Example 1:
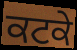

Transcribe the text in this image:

ਕਟਕੇ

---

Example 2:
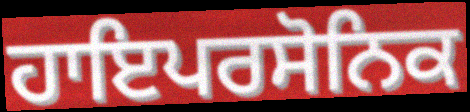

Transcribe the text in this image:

ਹਾਇਪਰਸੋਨਿਕ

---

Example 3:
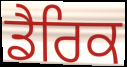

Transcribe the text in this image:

ਡੈਰਿਕ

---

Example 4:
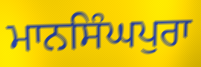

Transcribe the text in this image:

ਮਾਨਸਿੰਘਪੁਰਾ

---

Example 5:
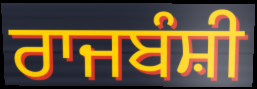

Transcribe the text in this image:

ਰਾਜਬੰਸ਼ੀ